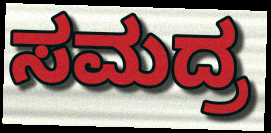
ಸಮದ್ರ